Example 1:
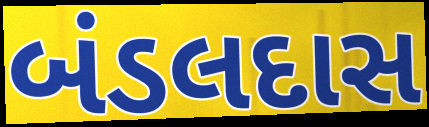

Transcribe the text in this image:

બંડલદાસ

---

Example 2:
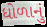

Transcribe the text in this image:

ધોળાનું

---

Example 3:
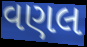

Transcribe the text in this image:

વણલ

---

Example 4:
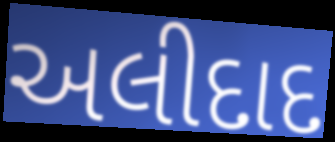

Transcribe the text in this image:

અલીદાદ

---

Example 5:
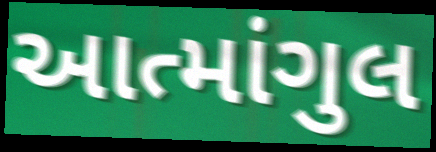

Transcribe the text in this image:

આત્માંગુલ